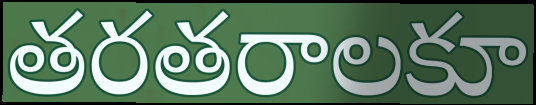
తరతరాలకూ